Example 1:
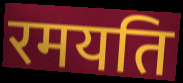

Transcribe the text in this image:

रमयति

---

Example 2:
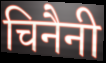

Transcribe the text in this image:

चिनैनी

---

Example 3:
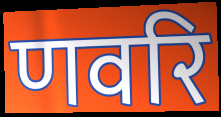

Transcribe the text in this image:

णवरि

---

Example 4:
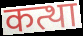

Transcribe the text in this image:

कत्था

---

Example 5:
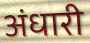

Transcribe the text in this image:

अंधारी